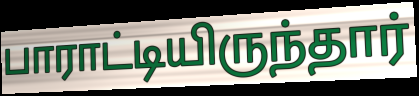
பாராட்டியிருந்தார்